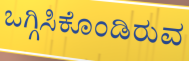
ಒಗ್ಗಿಸಿಕೊಂಡಿರುವ